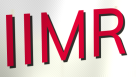
IIMR